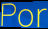
Por